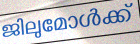
ജിലുമോൾക്ക്